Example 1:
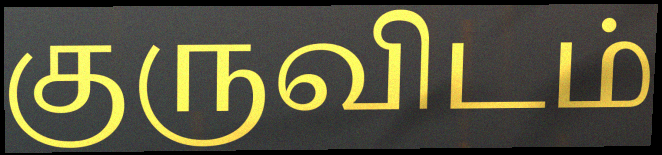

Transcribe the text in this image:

குருவிடம்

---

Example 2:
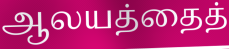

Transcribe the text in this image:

ஆலயத்தைத்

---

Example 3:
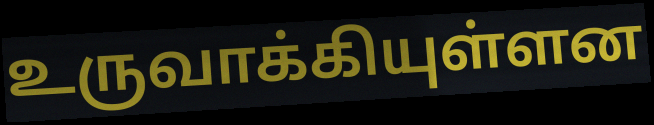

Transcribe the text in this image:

உருவாக்கியுள்ளன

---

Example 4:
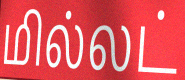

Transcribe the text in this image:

மில்லட்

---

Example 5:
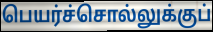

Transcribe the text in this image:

பெயர்ச்சொல்லுக்குப்